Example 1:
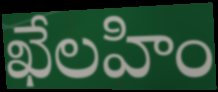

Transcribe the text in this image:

ఖేలహిం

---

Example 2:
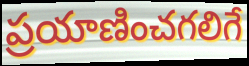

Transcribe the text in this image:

ప్రయాణించగలిగే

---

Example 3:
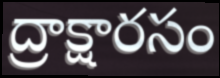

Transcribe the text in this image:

ద్రాక్షారసం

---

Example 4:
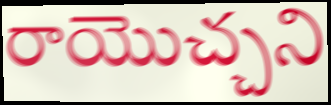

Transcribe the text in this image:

రాయొచ్చని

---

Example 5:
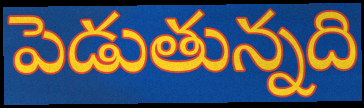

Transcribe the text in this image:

పెడుతున్నది